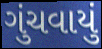
ગુંચવાયું